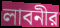
লাবনীর